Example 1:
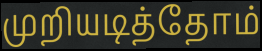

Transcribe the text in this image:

முறியடித்தோம்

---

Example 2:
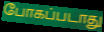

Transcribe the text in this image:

போகப்படாது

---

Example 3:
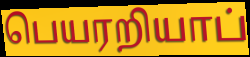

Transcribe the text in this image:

பெயரறியாப்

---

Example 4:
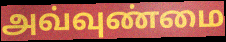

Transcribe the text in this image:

அவ்வுண்மை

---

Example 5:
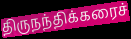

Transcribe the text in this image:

திருநந்திக்கரைச்